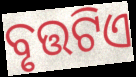
ବୃତ୍ତଟିଏ